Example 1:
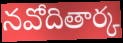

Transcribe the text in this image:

నవోదితార్క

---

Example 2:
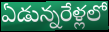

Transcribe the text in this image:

ఏడున్నరేళ్లలో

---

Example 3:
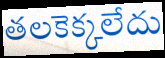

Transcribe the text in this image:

తలకెక్కలేదు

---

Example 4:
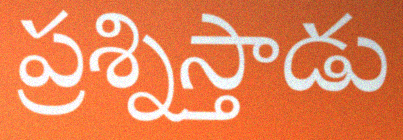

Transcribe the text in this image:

ప్రశ్నిస్తాడు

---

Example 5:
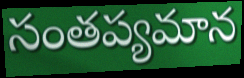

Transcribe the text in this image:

సంతప్యమాన